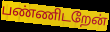
பண்ணிடறேன்